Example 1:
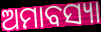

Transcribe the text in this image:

ଅମାବସ୍ୟା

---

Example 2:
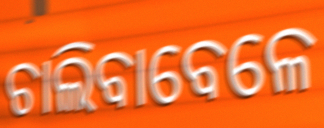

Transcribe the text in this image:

ଚାଲିବାବେଳେ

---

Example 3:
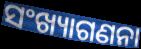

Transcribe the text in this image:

ସଂଖ୍ୟାଗଣନା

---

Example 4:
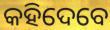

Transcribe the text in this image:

କହିଦେବେ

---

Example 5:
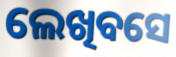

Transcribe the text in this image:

ଲେଖିବସେ